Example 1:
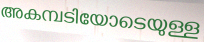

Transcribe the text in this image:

അകമ്പടിയോടെയുള്ള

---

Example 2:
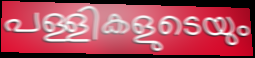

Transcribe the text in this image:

പള്ളികളുടെയും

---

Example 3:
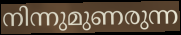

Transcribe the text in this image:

നിന്നുമുണരുന്ന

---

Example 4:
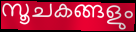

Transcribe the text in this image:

സൂചകങ്ങളും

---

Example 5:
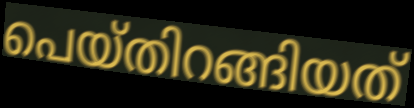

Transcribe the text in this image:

പെയ്തിറങ്ങിയത്